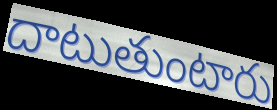
దాటుతుంటారు